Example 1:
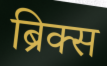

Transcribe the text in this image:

ब्रिक्स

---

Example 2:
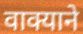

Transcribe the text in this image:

वाक्याने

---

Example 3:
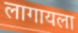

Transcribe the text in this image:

लागायला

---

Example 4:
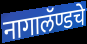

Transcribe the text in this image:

नागालॅण्डचे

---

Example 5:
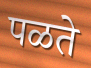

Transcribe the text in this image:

पळते